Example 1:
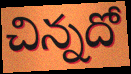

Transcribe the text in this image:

చిన్నదో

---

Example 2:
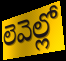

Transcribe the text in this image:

లెవెల్లో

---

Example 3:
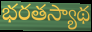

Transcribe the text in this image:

భరతస్యాథ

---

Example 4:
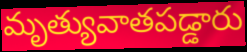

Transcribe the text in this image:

మృత్యువాతపడ్డారు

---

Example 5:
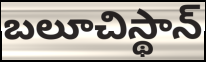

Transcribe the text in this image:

బలూచిస్థాన్